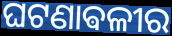
ଘଟଣାଵଳୀର